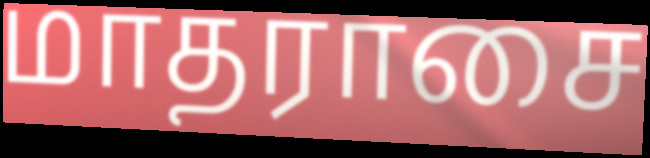
மாதராசை